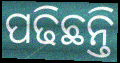
ପଢିଛନ୍ତି